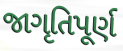
જાગૃતિપૂર્ણ